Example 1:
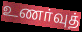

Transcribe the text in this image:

உணர்வுத்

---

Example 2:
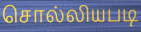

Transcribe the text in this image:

சொல்லியபடி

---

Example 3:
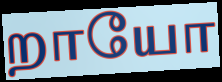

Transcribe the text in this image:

றாயோ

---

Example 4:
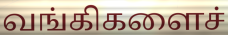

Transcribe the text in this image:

வங்கிகளைச்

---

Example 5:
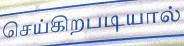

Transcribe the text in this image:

செய்கிறபடியால்